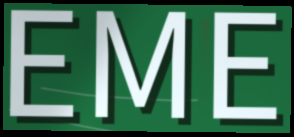
EME